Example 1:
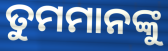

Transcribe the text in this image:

ତୁମମାନଙ୍କୁ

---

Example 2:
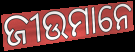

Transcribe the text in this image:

ଜୀଉମାନେ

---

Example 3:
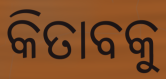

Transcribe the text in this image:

କିତାବକୁ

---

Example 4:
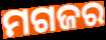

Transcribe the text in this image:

ମଗଜର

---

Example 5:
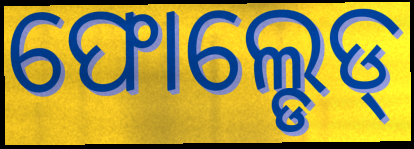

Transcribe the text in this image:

ଫୋଲ୍ଡେଡ୍